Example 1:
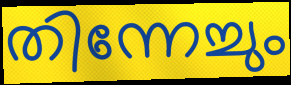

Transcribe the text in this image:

തിന്നേച്ചും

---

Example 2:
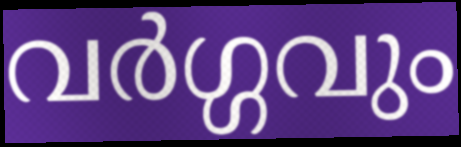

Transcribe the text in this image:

വർഗ്ഗവും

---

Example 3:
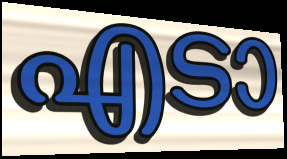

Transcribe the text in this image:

എടാ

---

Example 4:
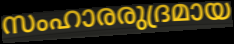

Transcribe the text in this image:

സംഹാരരുദ്രമായ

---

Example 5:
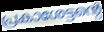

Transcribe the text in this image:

പ്രകാശേട്ടന്റെ